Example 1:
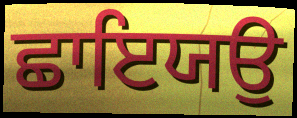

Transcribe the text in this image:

ਛਾਇਯਉ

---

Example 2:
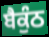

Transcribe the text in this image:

ਬੈਕੁੰਠ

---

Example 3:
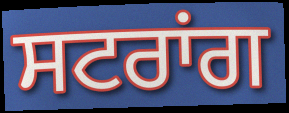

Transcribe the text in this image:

ਸਟਰਾਂਗ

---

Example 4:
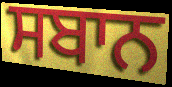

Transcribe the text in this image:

ਸਬਾਨ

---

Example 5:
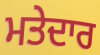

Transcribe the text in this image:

ਮਤੇਦਾਰ